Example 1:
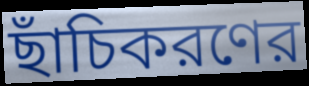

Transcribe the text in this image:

ছাঁচিকরণের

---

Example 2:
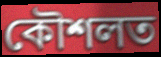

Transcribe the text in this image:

কৌশলত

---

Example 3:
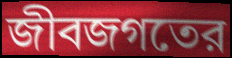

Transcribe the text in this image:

জীবজগতের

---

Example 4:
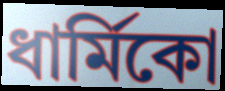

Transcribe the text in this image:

ধার্মিকো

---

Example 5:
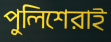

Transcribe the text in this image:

পুলিশেরাই